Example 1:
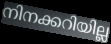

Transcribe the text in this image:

നിനക്കറിയില്ല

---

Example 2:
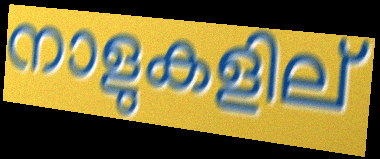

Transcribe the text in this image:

നാളുകളില്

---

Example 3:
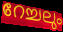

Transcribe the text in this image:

റേച്ചലും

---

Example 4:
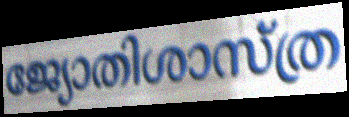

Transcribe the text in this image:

ജ്യോതിശാസ്ത്ര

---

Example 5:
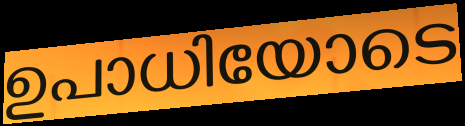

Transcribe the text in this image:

ഉപാധിയോടെ